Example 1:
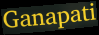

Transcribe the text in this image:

Ganapati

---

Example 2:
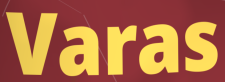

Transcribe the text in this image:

Varas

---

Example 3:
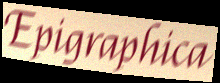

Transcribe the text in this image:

Epigraphica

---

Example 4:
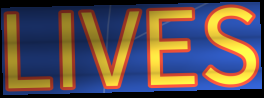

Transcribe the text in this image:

LIVES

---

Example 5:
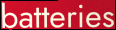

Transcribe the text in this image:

batteries